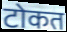
टोकत